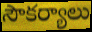
సౌకర్యాలు